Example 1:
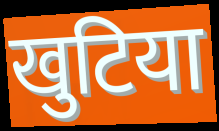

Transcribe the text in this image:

खुटिया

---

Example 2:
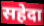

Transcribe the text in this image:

सहेदा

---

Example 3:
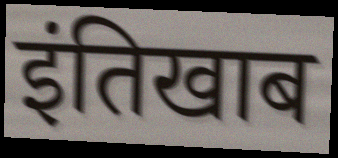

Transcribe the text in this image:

इंतिखाब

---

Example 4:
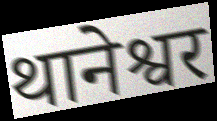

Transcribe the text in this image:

थानेश्वर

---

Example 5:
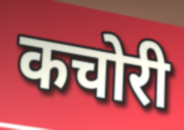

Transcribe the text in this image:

कचोरी